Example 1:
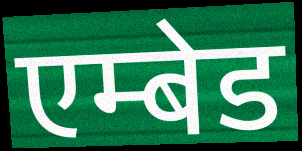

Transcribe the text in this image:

एम्बेड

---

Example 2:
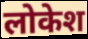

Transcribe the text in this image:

लोकेश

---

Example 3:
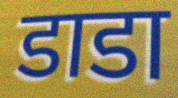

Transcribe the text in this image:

डाडा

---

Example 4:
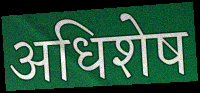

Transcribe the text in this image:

अधिशेष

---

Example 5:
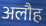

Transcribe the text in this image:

अलौह